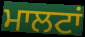
ਮਾਲਟਾਂ